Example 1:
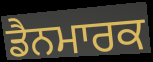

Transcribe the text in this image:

ਡੈਨਮਾਰਕ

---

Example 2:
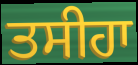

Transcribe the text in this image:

ਤਸੀਹਾ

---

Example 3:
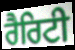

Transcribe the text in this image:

ਰੈਰਿਟੀ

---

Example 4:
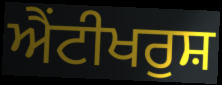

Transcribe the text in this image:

ਐਂਟੀਖਰੁਸ਼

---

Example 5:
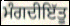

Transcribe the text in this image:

ਮੰਗਦੀਇੱਤੂ